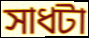
সাধটা